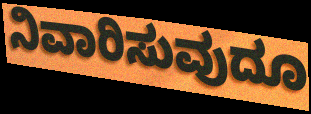
ನಿವಾರಿಸುವುದೂ